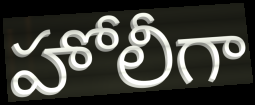
హోలీగా